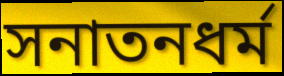
সনাতনধর্ম